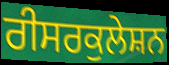
ਰੀਸਰਕੁਲੇਸ਼ਨ